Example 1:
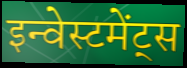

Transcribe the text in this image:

इन्वेस्टमेंट्स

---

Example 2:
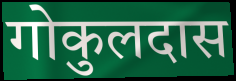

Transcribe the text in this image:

गोकुलदास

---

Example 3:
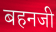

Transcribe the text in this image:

बहनजी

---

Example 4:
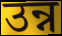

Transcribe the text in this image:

उन्न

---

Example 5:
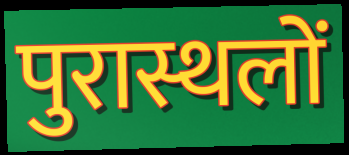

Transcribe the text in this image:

पुरास्थलों